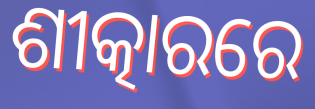
ଶୀତ୍କାରରେ